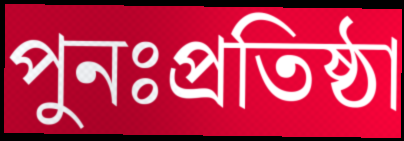
পুনঃপ্রতিষ্ঠা